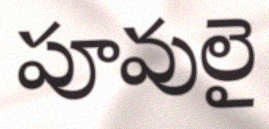
పూవులై